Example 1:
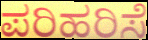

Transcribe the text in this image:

ಪರಿಹರಿಸೆ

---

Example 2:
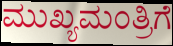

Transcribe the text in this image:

ಮುಖ್ಯಮಂತ್ರಿಗೆ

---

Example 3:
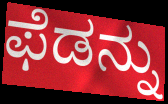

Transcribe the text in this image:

ಫೆಡನ್ನು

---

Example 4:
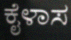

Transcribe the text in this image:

ಕೈಳಾಸ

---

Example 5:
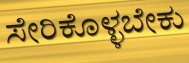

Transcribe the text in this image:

ಸೇರಿಕೊಳ್ಳಬೇಕು